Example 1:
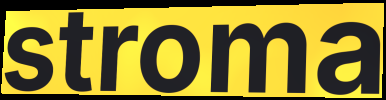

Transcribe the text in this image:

stroma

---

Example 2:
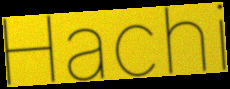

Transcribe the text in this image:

Hachi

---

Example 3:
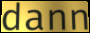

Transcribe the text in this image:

dann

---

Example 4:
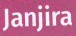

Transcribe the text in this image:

Janjira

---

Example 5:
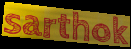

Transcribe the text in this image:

sarthok